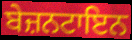
ਬੇਜ਼ਨਟਾਇਨ